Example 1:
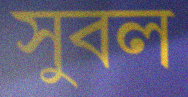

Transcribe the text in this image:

সুবল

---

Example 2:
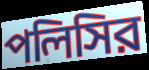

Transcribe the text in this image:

পলিসির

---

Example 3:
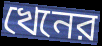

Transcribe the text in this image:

খেনের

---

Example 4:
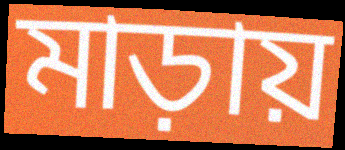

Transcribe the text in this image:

মাড়ায়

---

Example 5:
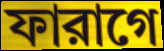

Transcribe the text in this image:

ফারাগে